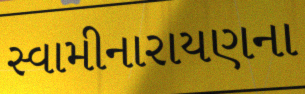
સ્વામીનારાયણના